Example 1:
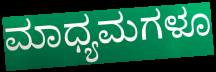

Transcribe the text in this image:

ಮಾಧ್ಯಮಗಳೂ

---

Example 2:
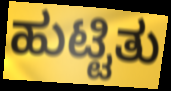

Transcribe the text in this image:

ಹುಟ್ಟಿತು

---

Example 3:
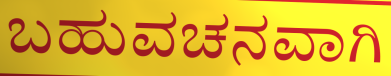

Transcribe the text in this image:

ಬಹುವಚನವಾಗಿ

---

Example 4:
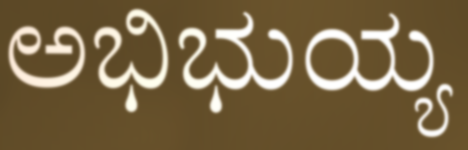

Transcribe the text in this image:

ಅಭಿಭುಯ್ಯ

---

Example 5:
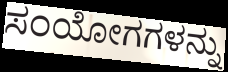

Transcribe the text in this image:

ಸಂಯೋಗಗಳನ್ನು